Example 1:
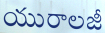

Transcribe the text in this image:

యురాలజీ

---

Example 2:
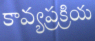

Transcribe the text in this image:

కావ్యప్రక్రియ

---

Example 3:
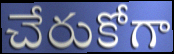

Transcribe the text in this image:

చేరుకోగా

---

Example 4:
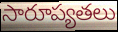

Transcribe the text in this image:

సారూప్యతలు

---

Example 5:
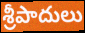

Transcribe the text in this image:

శ్రీపాదులు